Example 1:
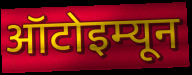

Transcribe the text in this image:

ऑटोइम्यून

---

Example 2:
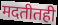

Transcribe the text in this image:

मदतीतही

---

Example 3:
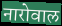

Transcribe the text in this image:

नारोवाल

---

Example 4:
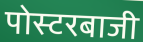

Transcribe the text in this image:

पोस्टरबाजी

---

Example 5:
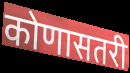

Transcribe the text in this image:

कोणासतरी